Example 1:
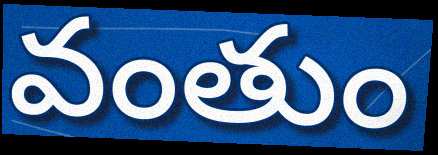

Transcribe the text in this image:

వంతుం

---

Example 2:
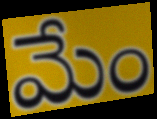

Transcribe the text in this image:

మేం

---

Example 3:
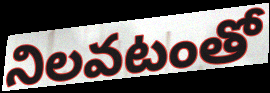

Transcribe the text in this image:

నిలవటంతో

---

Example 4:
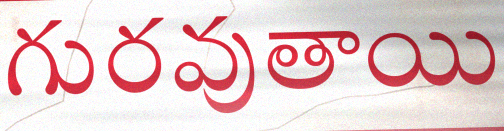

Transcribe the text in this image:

గురవుతాయి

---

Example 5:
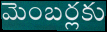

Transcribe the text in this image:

మెంబర్లకు